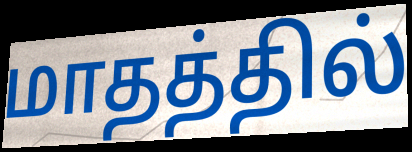
மாதத்தில்